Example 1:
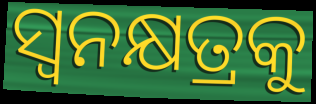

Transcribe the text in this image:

ସ୍ୱନକ୍ଷତ୍ରକୁ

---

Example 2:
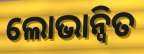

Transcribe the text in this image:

ଲୋଭାନ୍ୱିତ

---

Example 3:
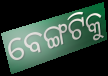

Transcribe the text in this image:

ବେଙ୍ଗଟିକୁ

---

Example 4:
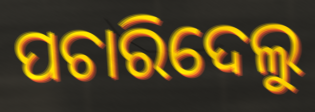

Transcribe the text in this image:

ପଚାରିଦେଲୁ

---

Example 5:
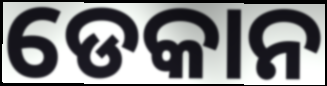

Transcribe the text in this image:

ଡେକାନ